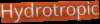
Hydrotropic